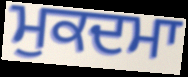
ਮੁਕਦਮਾ